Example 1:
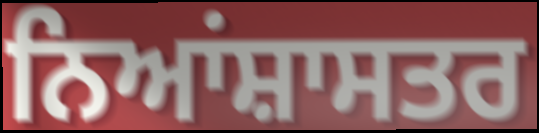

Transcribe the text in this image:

ਨਿਆਂਸ਼ਾਸਤਰ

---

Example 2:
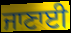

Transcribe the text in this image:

ਜਾਣਾਈ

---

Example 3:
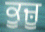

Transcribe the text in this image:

ਕੂਜ਼ੂ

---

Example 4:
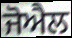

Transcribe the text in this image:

ਜੋਐਲ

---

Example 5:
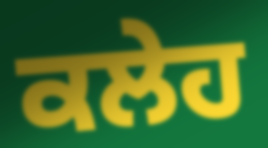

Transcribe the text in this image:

ਕਲੇਹ